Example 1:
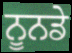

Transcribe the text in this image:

ਨੂਨਡੇ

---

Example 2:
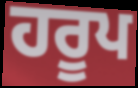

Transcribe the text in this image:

ਹਰੂਪ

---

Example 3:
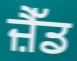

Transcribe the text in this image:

ਜ਼ੈੱਡ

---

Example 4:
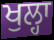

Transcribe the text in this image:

ਖੁਲ੍ਹਾ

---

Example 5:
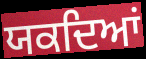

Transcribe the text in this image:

ਯਕਦਿਆਂ